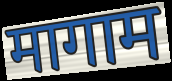
मागाम